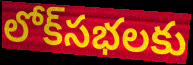
లోక్‌సభలకు